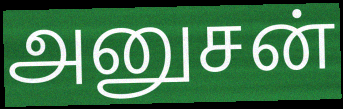
அனுசன்